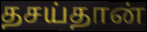
தசய்தான்